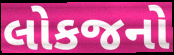
લોકજનો